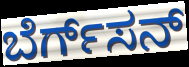
ಬೆರ್ಗ್‌ಸನ್